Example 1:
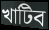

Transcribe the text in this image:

খাটিব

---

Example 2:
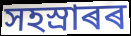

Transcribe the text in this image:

সহস্ৰাৰৰ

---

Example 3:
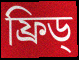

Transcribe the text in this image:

ফ্ৰিড্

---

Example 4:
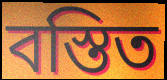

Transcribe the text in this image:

বস্তিত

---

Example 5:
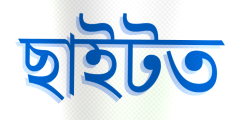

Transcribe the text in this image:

ছাইটত